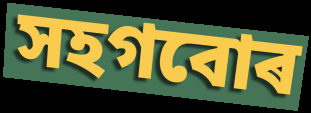
সহগবোৰ